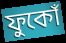
ফুকোঁ